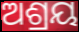
ଅଶ୍ରୟ